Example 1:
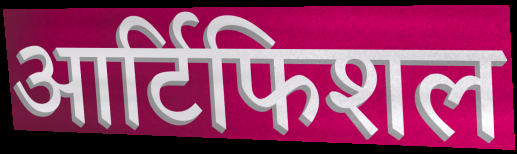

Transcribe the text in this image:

आर्टिफिशल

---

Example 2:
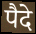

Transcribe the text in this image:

पैदे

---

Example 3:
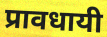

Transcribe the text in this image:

प्रावधायी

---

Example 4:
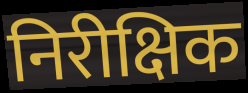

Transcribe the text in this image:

निरीक्षिक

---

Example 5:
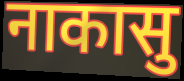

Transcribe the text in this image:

नाकासु